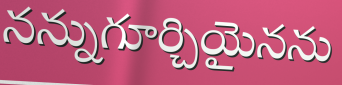
నన్నుగూర్చియైనను